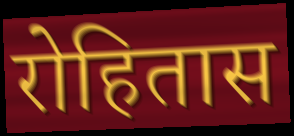
रोहितास